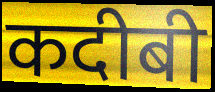
कदीबी